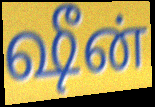
ஷீன்